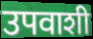
उपवाशी